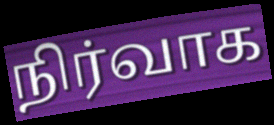
நிர்வாக